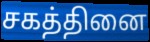
சகத்தினை